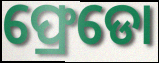
ଫ୍ରେଡୋ